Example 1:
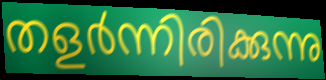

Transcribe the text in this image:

തളർന്നിരിക്കുന്നു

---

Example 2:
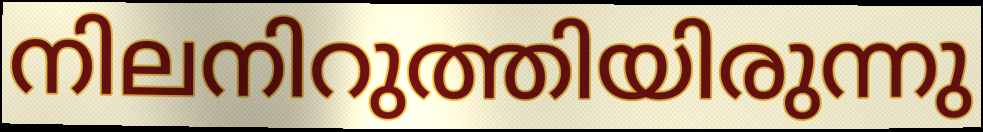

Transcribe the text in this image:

നിലനിറുത്തിയിരുന്നു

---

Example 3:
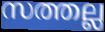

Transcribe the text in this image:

സത്തല്ല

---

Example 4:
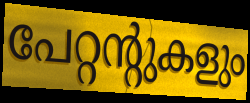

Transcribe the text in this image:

പേറ്റന്റുകളും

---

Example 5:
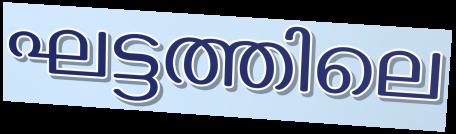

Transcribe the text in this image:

ഘട്ടത്തിലെ